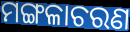
ମଙ୍ଗଳାଚରଣ